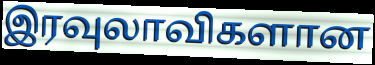
இரவுலாவிகளான